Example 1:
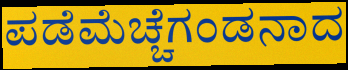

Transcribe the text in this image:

ಪಡೆಮೆಚ್ಚೆಗಂಡನಾದ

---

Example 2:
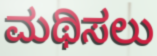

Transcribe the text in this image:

ಮಥಿಸಲು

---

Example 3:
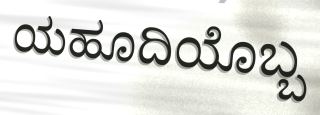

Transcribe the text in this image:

ಯಹೂದಿಯೊಬ್ಬ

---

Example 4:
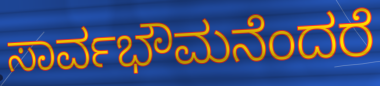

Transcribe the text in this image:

ಸಾರ್ವಭೌಮನೆಂದರೆ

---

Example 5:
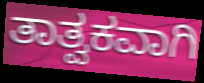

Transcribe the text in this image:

ತಾತ್ವಕವಾಗಿ